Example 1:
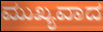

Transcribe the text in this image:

ಮುಖ್ಯವಾದ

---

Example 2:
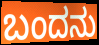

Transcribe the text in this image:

ಬಂದನು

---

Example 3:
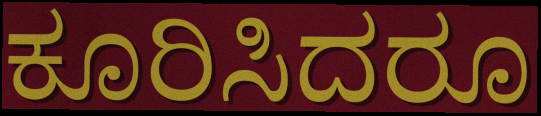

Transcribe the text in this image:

ಕೂರಿಸಿದರೂ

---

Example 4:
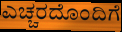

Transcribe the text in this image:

ಎಚ್ಚರದೊಂದಿಗೆ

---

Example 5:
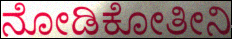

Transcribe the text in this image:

ನೋಡಿಕೋತೀನಿ